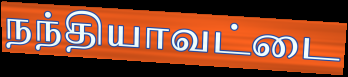
நந்தியாவட்டை